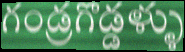
గండ్రగొడ్డళ్ళు